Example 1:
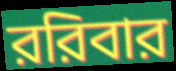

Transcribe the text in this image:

ররিবার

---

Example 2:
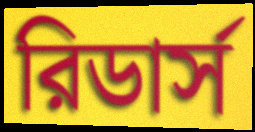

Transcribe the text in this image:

রিডার্স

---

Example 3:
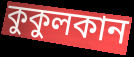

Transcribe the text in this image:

কুকুলকান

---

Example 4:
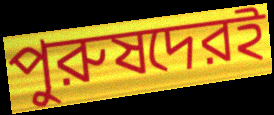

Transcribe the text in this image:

পুরুষদেরই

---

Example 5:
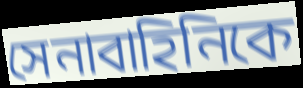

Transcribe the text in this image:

সেনাবাহিনিকে